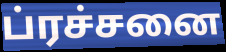
ப்ரச்சனை